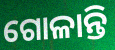
ଗୋଳାନ୍ତି